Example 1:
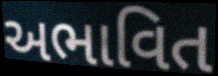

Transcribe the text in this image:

અભાવિત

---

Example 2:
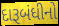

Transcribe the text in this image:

દારૂબંધીનો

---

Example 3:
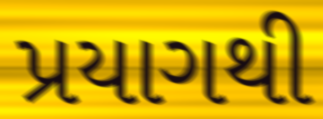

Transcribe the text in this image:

પ્રયાગથી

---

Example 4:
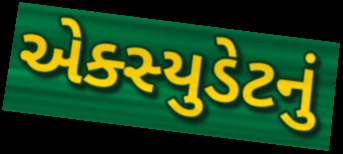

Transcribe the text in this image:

એક્સ્યુડેટનું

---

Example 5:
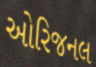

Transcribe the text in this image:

ઓરિજનલ